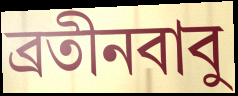
ব্রতীনবাবু